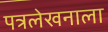
पत्रलेखनाला